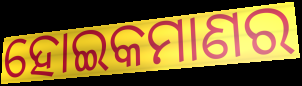
ହୋଇକମାଣର